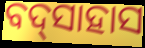
ବଦ୍‌ସାହାସ